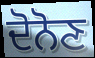
ਦੋਨੋਣ